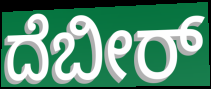
ದೆಬೀರ್